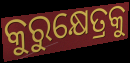
କୁରୁକ୍ଷେତ୍ରକୁ